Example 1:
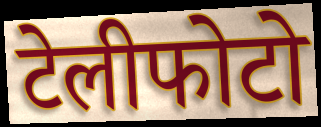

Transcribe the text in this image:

टेलीफोटो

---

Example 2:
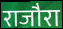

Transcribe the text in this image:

राजौरा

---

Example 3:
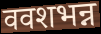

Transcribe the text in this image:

ववशभन्न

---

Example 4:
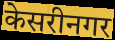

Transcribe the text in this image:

केसरीनगर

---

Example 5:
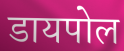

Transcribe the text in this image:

डायपोल